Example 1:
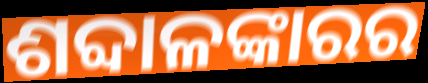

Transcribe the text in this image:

ଶବ୍ଦାଳଙ୍କାରର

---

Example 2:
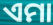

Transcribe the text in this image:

ଏମା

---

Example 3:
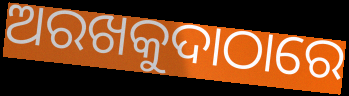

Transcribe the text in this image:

ଅରଖକୁଦାଠାରେ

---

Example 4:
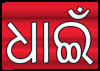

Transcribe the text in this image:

ଧାଇଁ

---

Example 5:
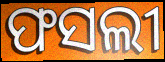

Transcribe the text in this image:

ଫସଲୀ